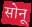
सोनू